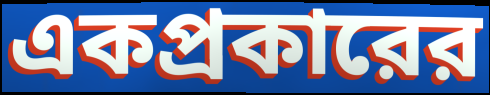
একপ্রকারের